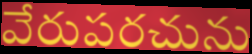
వేరుపరచును